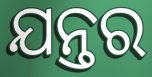
ଯନ୍ତର